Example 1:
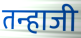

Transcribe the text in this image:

तन्हाजी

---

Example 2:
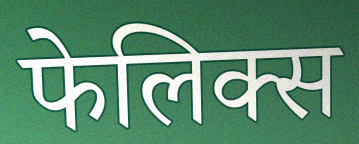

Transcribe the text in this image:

फेलिक्स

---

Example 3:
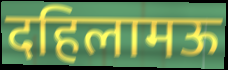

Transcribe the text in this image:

दहिलामऊ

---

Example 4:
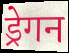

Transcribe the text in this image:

ड्रेगन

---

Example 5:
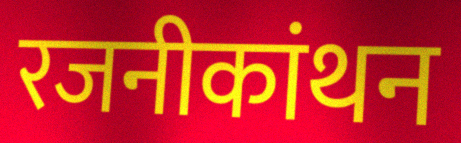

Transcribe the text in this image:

रजनीकांथन